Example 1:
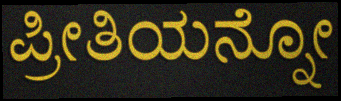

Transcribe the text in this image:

ಪ್ರೀತಿಯನ್ನೋ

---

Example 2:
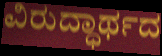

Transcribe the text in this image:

ವಿರುದ್ಧಾರ್ಥದ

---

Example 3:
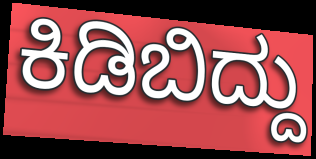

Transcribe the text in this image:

ಕಿಡಿಬಿದ್ದು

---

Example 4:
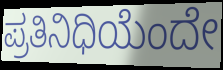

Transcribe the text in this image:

ಪ್ರತಿನಿಧಿಯೆಂದೇ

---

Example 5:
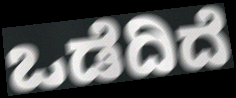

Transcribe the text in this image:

ಒಡೆದಿದೆ